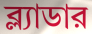
ব্ল্যাডার